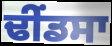
ਢੀੰਂਡਸਾ